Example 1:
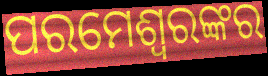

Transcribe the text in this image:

ପରମେଶ୍ୱରଙ୍କର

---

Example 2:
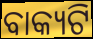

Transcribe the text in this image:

ବାକ୍ୟଟି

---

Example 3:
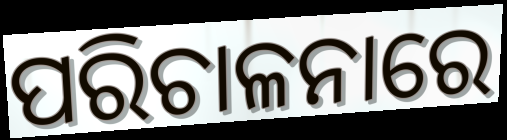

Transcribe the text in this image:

ପରିଚାଳନାରେ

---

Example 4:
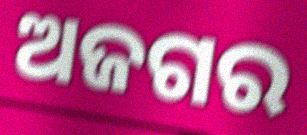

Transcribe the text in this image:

ଅଜଗର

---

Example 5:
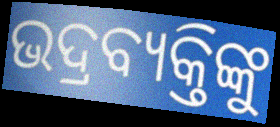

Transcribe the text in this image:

ଭଦ୍ରବ୍ୟକ୍ତିଙ୍କୁ